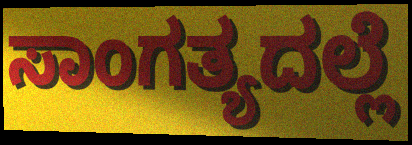
ಸಾಂಗತ್ಯದಲ್ಲೆ